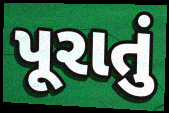
પૂરાતું